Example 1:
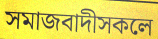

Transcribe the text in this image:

সমাজবাদীসকলে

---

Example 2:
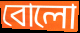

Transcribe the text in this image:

বোলো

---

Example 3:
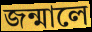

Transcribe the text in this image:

জন্মালে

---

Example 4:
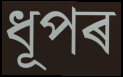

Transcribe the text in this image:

ধূপৰ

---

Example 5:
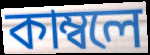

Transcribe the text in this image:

কাম্বলে